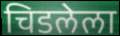
चिडलेला